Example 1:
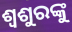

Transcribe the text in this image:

ଶ୍ୱଶୁରଙ୍କୁ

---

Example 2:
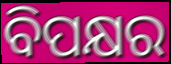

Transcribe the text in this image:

ବିପକ୍ଷର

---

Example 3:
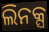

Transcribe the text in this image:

ଲିନକ୍ସ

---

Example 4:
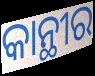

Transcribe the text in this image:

କାନ୍ଥୀର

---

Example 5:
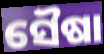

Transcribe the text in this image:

ସୈଷା